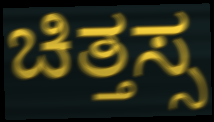
ಚಿತ್ತಸ್ಸ